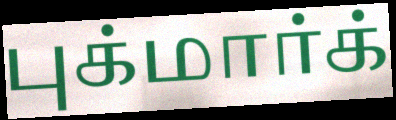
புக்மார்க்